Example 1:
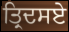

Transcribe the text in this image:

ਤ੍ਰਿਦਸਏ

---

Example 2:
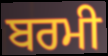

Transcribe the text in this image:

ਬਰਮੀ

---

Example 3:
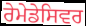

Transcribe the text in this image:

ਰੇਮੇਡੇਸਿਵਰ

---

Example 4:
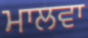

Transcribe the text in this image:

ਮਾਲਵਾ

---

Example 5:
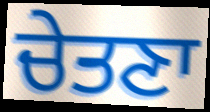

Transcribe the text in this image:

ਚੇਤਣਾ